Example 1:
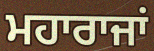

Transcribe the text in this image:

ਮਹਾਰਾਜਾਂ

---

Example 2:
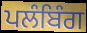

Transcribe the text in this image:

ਪਲੰਬਿੰਗ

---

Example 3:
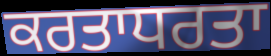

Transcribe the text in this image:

ਕਰਤਾਧਰਤਾ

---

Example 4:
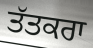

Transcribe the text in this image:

ਤੱਤਕਰਾ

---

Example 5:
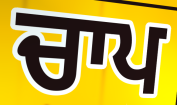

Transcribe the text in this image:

ਚਾਪ